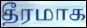
தீரமாக